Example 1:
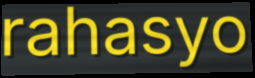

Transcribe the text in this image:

rahasyo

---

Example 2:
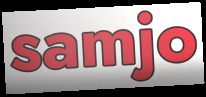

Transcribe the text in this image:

samjo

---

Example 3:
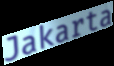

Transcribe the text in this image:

Jakarta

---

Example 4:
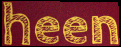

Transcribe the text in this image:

heen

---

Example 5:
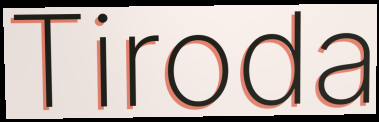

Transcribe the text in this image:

Tiroda